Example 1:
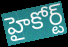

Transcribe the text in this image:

హైకోర్ట్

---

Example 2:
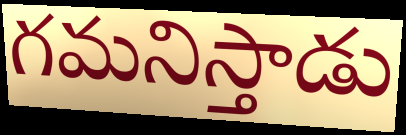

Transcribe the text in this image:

గమనిస్తాడు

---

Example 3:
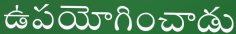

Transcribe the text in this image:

ఉపయోగించాడు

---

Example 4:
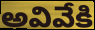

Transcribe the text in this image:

అవివేకి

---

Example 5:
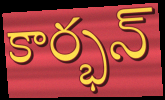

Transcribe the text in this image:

కార్భన్